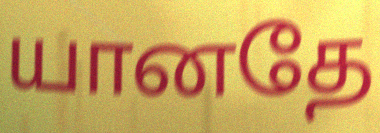
யானதே